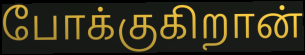
போக்குகிறான்